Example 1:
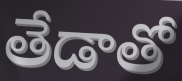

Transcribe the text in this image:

తేడాతో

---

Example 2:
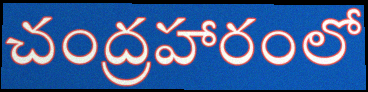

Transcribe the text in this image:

చంద్రహారంలో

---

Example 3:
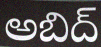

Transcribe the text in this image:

అబిద్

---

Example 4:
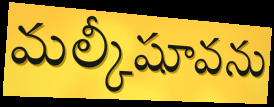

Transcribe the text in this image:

మల్కీషూవను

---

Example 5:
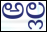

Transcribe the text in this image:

అల్ల